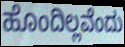
ಹೊಂದಿಲ್ಲವೆಂದು